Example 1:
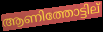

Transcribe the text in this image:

ആണിത്തോട്ടില്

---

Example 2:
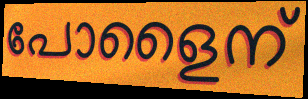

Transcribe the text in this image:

പോളൈന്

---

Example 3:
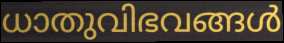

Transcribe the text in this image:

ധാതുവിഭവങ്ങൾ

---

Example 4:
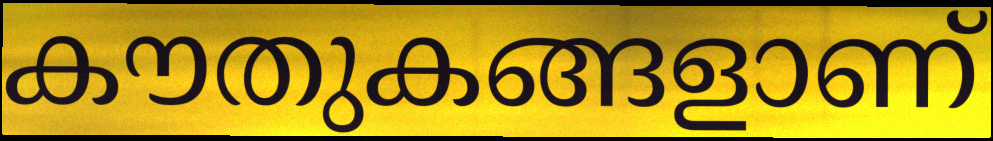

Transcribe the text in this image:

കൗതുകങ്ങളാണ്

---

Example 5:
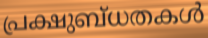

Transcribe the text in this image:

പ്രക്ഷുബ്ധതകൾ